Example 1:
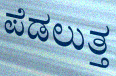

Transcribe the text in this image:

ಪೆಡಲುತ್ತ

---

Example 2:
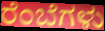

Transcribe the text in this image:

ರೆಂಬೆಗಳು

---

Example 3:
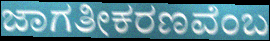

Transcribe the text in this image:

ಜಾಗತೀಕರಣವೆಂಬ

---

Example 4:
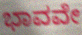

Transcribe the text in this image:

ಭಾವವೇ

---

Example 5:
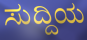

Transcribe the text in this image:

ಸುದ್ದಿಯ